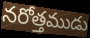
నరోత్తముడు